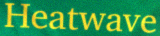
Heatwave